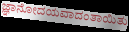
ಜ್ಞಾನೋದಯವಾದಂತಾಯಿತು